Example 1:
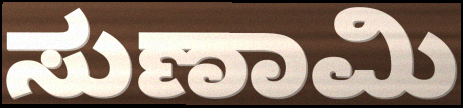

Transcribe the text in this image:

ಸುಣಾಮಿ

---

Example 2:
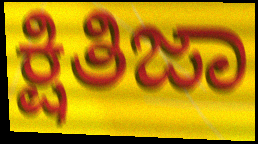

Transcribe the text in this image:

ಕ್ಷಿತಿಜಾ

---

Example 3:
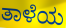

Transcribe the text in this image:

ತಾಳೆಯ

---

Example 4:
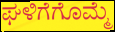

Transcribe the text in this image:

ಘಳಿಗೆಗೊಮ್ಮೆ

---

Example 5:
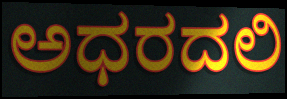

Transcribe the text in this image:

ಅಧರದಲಿ